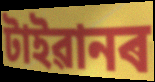
টাইৱানৰ